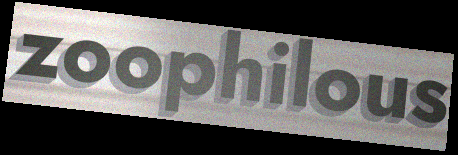
zoophilous